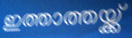
ഇത്താത്തയ്ക്ക്